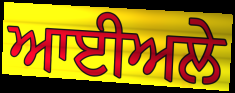
ਆਈਅਲੇ